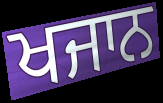
ਖਜਾਨ